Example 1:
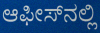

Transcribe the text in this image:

ಆಫೀಸ್‌ನಲ್ಲಿ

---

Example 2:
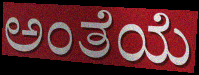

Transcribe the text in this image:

ಅಂತೆಯೆ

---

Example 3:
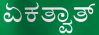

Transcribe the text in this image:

ಏಕತ್ವಾತ್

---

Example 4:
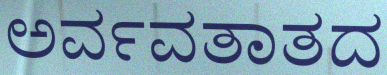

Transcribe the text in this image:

ಅರ್ವವತಾತದ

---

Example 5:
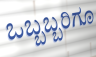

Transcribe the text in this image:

ಒಬ್ಬಬ್ಬರಿಗೂ